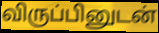
விருப்பினுடன்